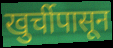
खुर्चीपासून